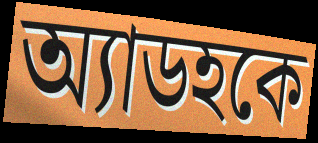
অ্যাডহকে